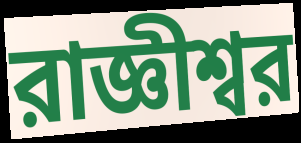
রাজ্ঞীশ্বর